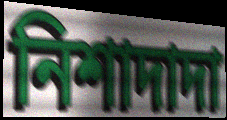
নিশাদাদা